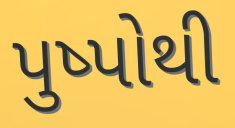
પુષ્પોથી